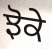
ਝੋਕੇ